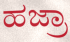
ಹಜ್ರಾ